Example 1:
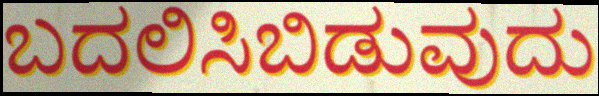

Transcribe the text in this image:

ಬದಲಿಸಿಬಿಡುವುದು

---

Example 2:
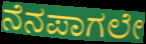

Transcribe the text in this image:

ನೆನಪಾಗಲೇ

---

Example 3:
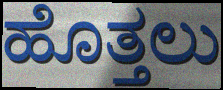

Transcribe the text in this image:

ಹೊತ್ತಲು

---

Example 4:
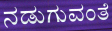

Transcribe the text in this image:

ನಡುಗುವಂತೆ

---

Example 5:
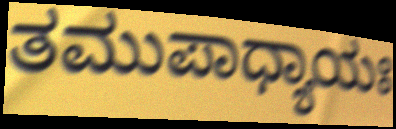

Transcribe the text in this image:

ತಮುಪಾಧ್ಯಾಯಃ